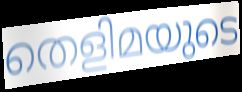
തെളിമയുടെ